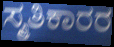
ಸ್ಮೃತಿಕಾರರ